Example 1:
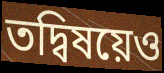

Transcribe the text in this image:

তদ্বিষয়েও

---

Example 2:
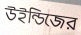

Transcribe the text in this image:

উইন্ডিজের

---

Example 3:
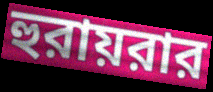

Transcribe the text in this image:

হুরায়রার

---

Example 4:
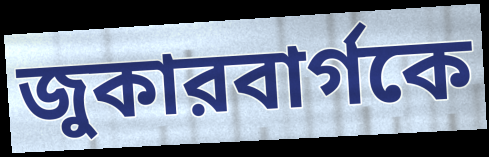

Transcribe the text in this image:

জুকারবার্গকে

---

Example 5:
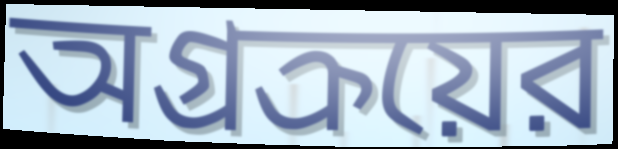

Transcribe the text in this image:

অগ্রক্রয়ের